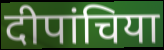
दीपांचिया